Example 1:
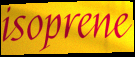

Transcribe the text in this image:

isoprene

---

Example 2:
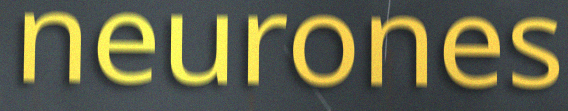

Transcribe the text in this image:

neurones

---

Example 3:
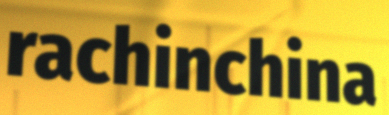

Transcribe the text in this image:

rachinchina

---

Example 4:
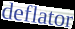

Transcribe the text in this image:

deflator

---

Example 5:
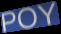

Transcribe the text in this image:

POY